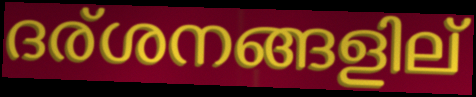
ദര്ശനങ്ങളില്